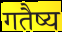
गतैष्य